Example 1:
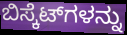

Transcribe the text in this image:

ಬಿಸ್ಕೆಟ್‌ಗಳನ್ನು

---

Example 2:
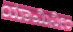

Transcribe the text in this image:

ಯಾಮಿನೀಂ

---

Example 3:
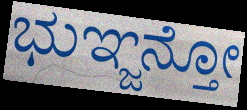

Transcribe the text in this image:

ಭುಞ್ಜನ್ತೋ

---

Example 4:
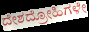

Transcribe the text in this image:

ದೇಶದ್ರೋಹಿಗಳೇ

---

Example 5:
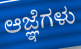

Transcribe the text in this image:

ಆಜ್ಞೆಗಳು